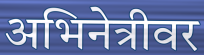
अभिनेत्रीवर